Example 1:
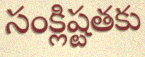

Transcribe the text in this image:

సంక్లిష్టతకు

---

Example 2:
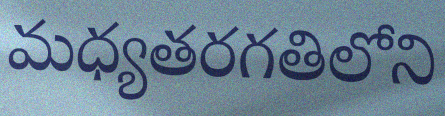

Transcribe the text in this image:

మధ్యతరగతిలోని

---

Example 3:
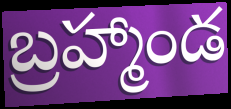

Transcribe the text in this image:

బ్రహ్మాండ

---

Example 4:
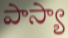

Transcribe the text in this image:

పాస్యా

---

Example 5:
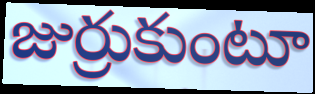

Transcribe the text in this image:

జుర్రుకుంటూ